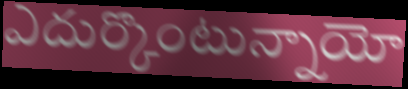
ఎదుర్కొంటున్నాయో